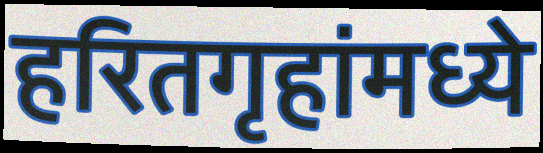
हरितगृहांमध्ये